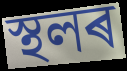
স্থলৰ